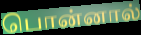
பொன்னால்